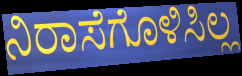
ನಿರಾಸೆಗೊಳಿಸಿಲ್ಲ